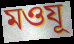
মওযূ